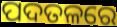
ପଦତଳରେ